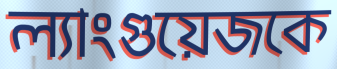
ল্যাংগুয়েজকে